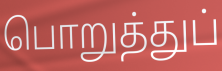
பொறுத்துப்